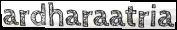
ardharaatria